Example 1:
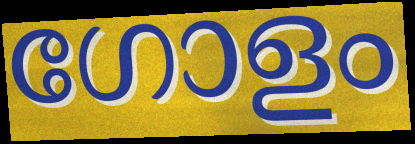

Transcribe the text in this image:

ഗോളം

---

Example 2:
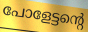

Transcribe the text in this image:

പോളേട്ടന്റെ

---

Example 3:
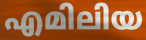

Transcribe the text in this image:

എമിലിയ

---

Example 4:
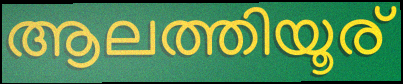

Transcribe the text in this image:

ആലത്തിയൂര്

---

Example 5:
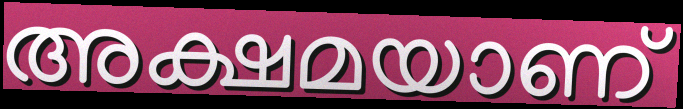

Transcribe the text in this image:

അക്ഷമയാണ്